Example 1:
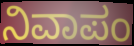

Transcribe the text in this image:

ನಿವಾಪಂ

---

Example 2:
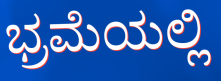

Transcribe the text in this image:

ಭ್ರಮೆಯಲ್ಲಿ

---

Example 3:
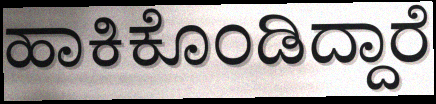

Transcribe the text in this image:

ಹಾಕಿಕೊಂಡಿದ್ದಾರೆ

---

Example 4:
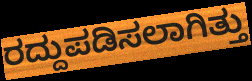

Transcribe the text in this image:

ರದ್ದುಪಡಿಸಲಾಗಿತ್ತು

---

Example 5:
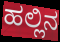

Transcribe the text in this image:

ಹಲ್ಲಿನ